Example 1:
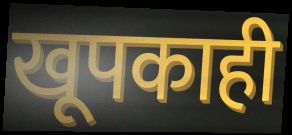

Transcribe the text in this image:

खूपकाही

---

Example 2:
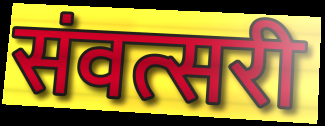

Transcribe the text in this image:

संवत्सरी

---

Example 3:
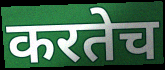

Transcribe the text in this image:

करतेच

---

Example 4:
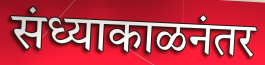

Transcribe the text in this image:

संध्याकाळनंतर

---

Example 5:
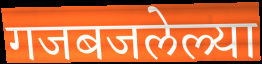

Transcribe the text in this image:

गजबजलेल्या